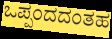
ಒಪ್ಪಂದದಂತಹ